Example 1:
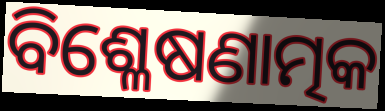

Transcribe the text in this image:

ବିଶ୍ଳେଷଣାତ୍ମକ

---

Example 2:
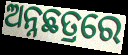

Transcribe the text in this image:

ଅନ୍ନଛତ୍ରରେ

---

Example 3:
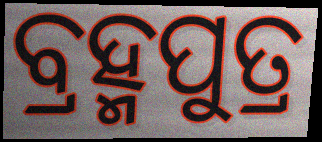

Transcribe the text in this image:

ବ୍ରହ୍ମପୁତ୍ର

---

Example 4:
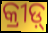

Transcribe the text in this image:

କ୍ରୀଡ଼୍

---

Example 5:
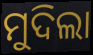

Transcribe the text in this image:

ମୁଦିଲା